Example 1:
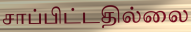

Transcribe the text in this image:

சாப்பிட்டதில்லை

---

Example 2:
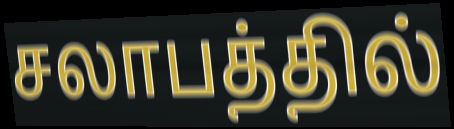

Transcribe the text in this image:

சலாபத்தில்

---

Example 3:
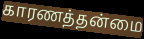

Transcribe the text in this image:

காரணத்தன்மை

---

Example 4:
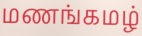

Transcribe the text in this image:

மணங்கமழ்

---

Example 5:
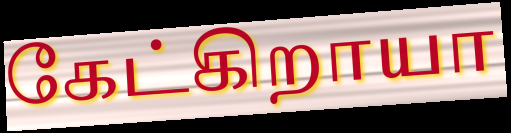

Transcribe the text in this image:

கேட்கிறாயா